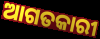
ଆଗତକାରୀ